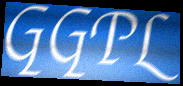
GGPL